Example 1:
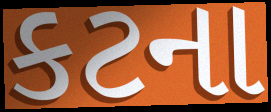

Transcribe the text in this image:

કટના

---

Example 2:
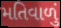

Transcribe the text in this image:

મતિવાળું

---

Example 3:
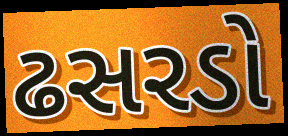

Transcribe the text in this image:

ઢસરડો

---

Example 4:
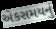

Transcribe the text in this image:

એકસમયનું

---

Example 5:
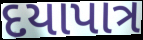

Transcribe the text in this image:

દયાપાત્ર